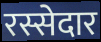
रस्सेदार